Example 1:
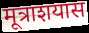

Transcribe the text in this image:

मूत्राशयास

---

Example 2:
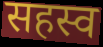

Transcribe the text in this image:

सहस्व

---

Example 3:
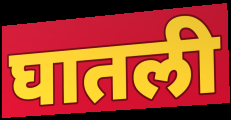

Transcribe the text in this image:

घातली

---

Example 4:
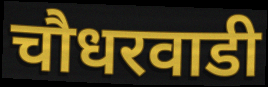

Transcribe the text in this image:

चौधरवाडी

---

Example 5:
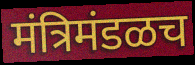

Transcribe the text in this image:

मंत्रिमंडळच